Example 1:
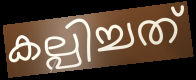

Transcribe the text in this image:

കല്പിച്ചത്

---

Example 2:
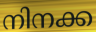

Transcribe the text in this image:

നിനക്ക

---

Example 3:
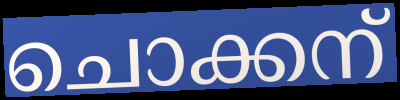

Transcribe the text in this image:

ചൊക്കന്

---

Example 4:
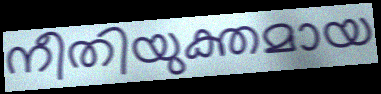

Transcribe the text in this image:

നീതിയുക്തമായ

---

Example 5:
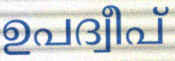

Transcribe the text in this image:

ഉപദ്വീപ്